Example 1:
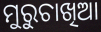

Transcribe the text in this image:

ମୁରୁଚାଖିଆ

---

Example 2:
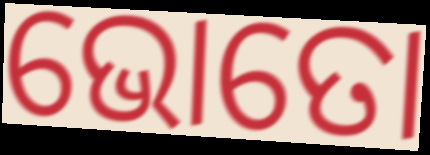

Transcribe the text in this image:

ଭୋତୋ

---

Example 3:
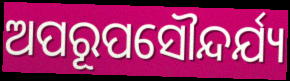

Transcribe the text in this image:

ଅପରୂପସୌନ୍ଦର୍ଯ୍ୟ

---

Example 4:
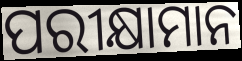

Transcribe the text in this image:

ପରୀକ୍ଷାମାନ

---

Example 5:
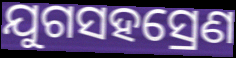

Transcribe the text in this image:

ଯୁଗସହସ୍ରେଣ